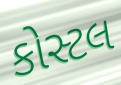
કોસ્ટલ